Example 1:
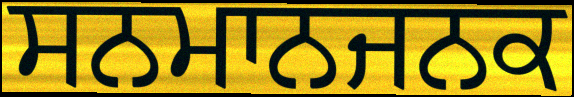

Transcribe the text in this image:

ਸਨਮਾਨਜਨਕ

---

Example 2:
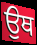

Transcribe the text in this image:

ਉਥ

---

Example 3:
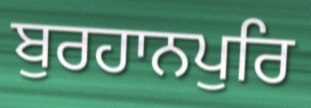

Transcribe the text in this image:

ਬੁਰਹਾਨਪੁਰਿ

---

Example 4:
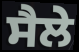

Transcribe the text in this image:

ਸੈਲੇ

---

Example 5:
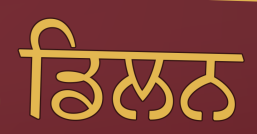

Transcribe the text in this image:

ਡਿਲਨ